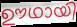
ഊഥായി